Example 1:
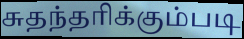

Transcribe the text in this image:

சுதந்தரிக்கும்படி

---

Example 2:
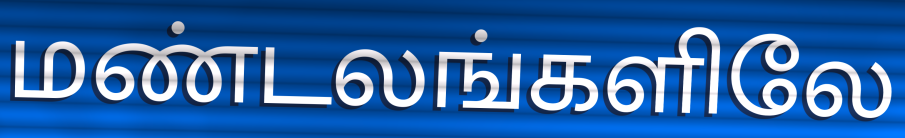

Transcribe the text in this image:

மண்டலங்களிலே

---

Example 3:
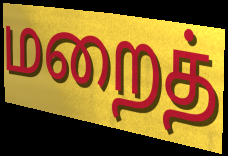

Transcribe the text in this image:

மறைத்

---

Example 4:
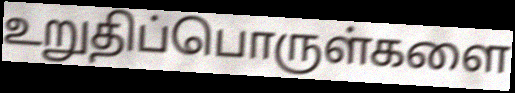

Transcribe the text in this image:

உறுதிப்பொருள்களை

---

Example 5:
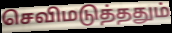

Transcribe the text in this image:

செவிமடுத்ததும்